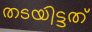
തടയിട്ടത്